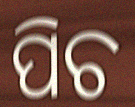
ପିଚ